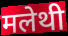
मलेथी